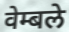
वेम्बले